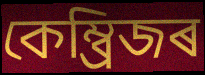
কেম্ব্ৰিজৰ